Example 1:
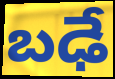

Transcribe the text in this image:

బఢే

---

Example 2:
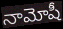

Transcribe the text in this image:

నామోషీ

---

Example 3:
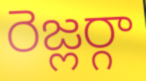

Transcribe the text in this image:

రెజ్లర్గా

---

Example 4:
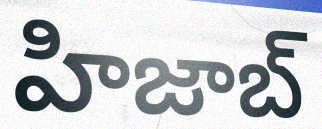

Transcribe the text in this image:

హిజాబ్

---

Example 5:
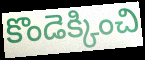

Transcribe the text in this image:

కొండెక్కించి